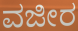
ವಜೀರ